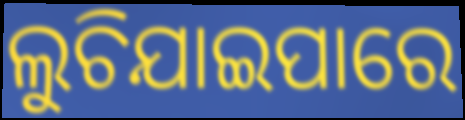
ଲୁଚିଯାଇପାରେ